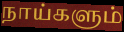
நாய்களும்